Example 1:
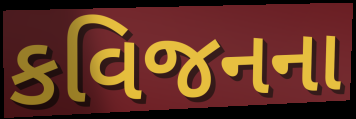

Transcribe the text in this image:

કવિજનના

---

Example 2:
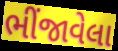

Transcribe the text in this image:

ભીંજાવેલા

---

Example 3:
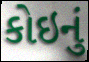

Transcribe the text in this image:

કોઇનું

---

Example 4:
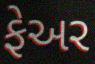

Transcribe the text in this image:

ફેઅર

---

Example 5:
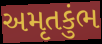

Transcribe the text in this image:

અમૃતકુંભ